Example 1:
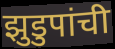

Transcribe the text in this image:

झुडुपांची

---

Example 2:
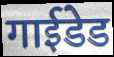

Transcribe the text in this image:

गाईडेड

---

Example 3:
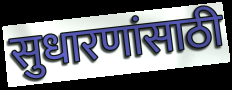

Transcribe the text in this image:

सुधारणांसाठी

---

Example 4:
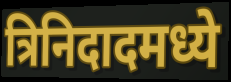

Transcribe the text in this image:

त्रिनिदादमध्ये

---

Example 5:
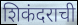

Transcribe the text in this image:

शिकंदराची